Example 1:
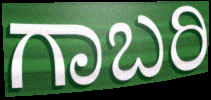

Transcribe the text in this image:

ಗಾಬರಿ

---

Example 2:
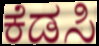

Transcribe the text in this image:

ಕೆಡಸಿ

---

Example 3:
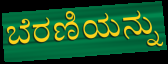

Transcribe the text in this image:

ಬೆರಣಿಯನ್ನು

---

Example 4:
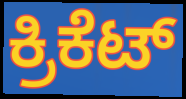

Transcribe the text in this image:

ಕ್ರಿಕೆಟ್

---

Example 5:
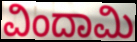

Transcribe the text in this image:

ವಿಂದಾಮಿ